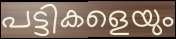
പട്ടികളെയും